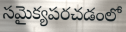
సమైక్యపరచడంలో